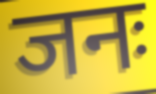
जनः